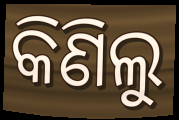
କିଣିଲୁ